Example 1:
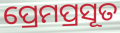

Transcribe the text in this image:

ପ୍ରେମପ୍ରସୂତ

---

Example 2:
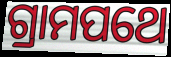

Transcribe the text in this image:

ଗ୍ରାମପଥେ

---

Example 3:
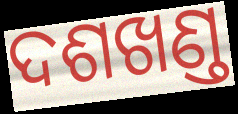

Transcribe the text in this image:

ଦଶଖଣ୍ଡ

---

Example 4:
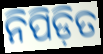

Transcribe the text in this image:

ନିପିଡ଼ିତ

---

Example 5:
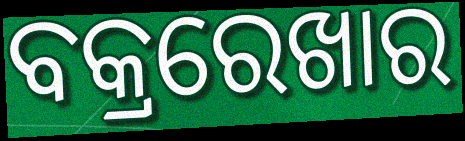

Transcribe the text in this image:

ବକ୍ରରେଖାର